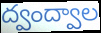
ద్వంద్వాల